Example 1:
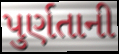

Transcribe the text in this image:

પુર્ણતાની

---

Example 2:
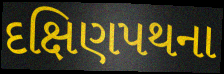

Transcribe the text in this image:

દક્ષિણપથના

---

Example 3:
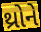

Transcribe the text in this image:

થ્રોને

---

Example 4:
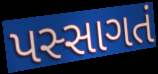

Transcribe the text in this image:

પસ્સાગતં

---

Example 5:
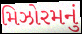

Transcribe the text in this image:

મિઝોરમનું